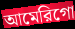
আমেরিগো